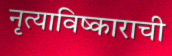
नृत्याविष्काराची